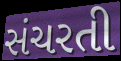
સંચરતી